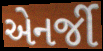
એનર્જી